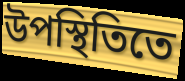
উপস্থিতিতে